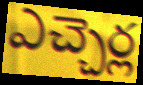
ఎచ్చెర్ల